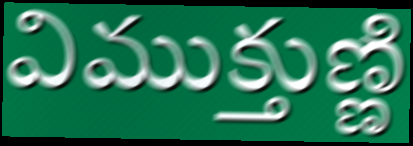
విముక్తుణ్ణి